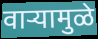
वाऱ्यामुळे